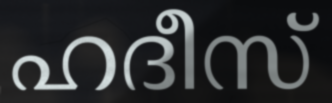
ഹദീസ്